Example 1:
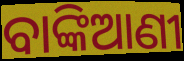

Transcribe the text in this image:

ବାଙ୍କିଆଣୀ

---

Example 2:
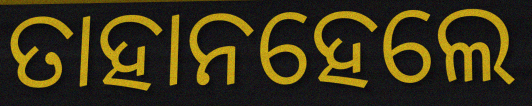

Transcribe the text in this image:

ତାହାନହେଲେ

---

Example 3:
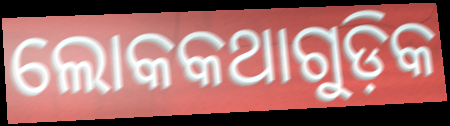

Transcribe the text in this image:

ଲୋକକଥାଗୁଡ଼ିକ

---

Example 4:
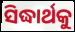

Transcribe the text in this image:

ସିଦ୍ଧାର୍ଥକୁ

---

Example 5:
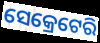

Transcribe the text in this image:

ସେକ୍ରେଟେରି